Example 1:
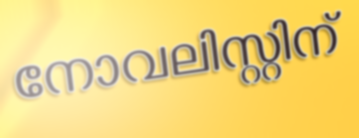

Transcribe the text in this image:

നോവലിസ്റ്റിന്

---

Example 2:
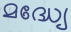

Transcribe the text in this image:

മദ്ധ്യേ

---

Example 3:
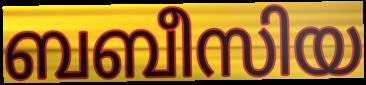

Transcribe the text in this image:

ബബീസിയ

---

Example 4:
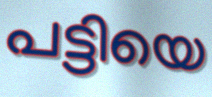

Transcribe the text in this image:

പട്ടിയെ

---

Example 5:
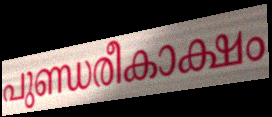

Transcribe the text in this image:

പുണ്ഡരീകാക്ഷം